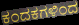
ಕಂದಕಗಳಿಂದ